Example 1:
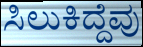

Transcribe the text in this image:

ಸಿಲುಕಿದ್ದೆವು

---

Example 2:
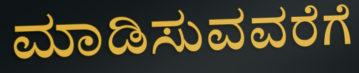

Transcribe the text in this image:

ಮಾಡಿಸುವವರೆಗೆ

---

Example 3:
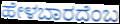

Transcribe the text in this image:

ಹೇಳಬಾರದೆಂಬ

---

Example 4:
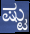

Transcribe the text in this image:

ಷ್ಟು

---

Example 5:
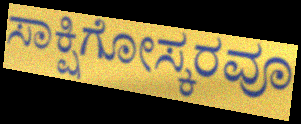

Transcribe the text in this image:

ಸಾಕ್ಷಿಗೋಸ್ಕರವೂ